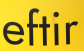
eftir